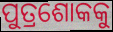
ପୁତ୍ରଶୋକକୁ